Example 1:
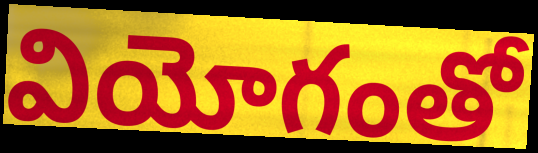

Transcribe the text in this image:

వియోగంతో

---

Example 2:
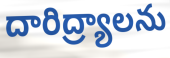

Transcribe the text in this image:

దారిద్ర్యాలను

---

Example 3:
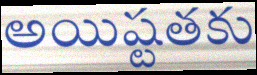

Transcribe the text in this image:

అయిష్టతకు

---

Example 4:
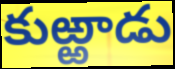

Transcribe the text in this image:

కుఱ్ఱాడు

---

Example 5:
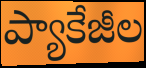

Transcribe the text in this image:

ప్యాకేజీల